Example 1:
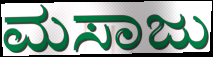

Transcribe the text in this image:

ಮಸಾಜು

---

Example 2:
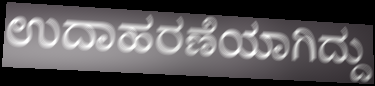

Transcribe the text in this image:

ಉದಾಹರಣೆಯಾಗಿದ್ದು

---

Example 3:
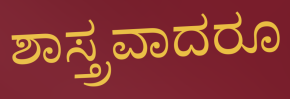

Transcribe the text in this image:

ಶಾಸ್ತ್ರವಾದರೂ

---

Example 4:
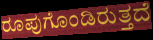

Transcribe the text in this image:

ರೂಪುಗೊಂಡಿರುತ್ತದೆ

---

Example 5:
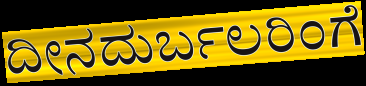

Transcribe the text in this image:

ದೀನದುರ್ಬಲರಿಂಗೆ